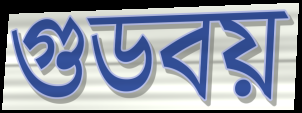
গুডবয়